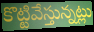
కొట్టివేస్తున్నట్లు